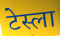
टेस्ला